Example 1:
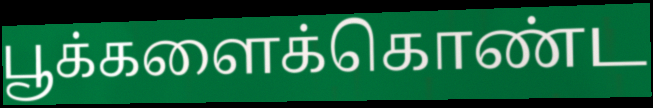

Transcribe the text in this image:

பூக்களைக்கொண்ட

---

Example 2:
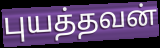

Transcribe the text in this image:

புயத்தவன்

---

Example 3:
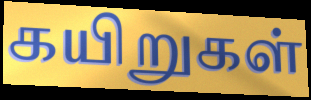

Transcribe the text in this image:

கயிறுகள்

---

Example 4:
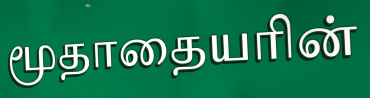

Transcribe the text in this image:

மூதாதையரின்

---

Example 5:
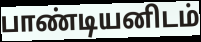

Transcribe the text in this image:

பாண்டியனிடம்